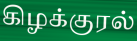
கிழக்குரல்